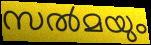
സൽമയും